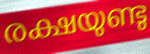
രക്ഷയുണ്ടു